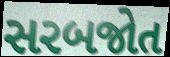
સરબજોત